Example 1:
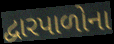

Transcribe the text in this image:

દ્વારપાળોના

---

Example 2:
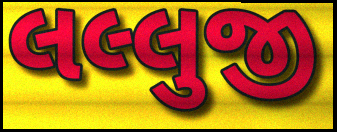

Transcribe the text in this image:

લલ્લુજી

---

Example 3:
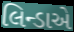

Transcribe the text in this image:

લિન્ડાએ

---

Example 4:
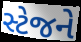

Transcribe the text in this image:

સ્ટેજને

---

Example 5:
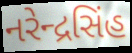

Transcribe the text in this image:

નરેન્દ્રસિંહ